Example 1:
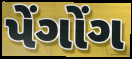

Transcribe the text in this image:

પેંગોંગ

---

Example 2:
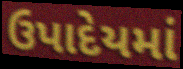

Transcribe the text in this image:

ઉપાદેયમાં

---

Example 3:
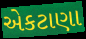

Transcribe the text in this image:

એકટાણા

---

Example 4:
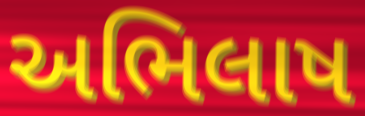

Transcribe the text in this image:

અભિલાષ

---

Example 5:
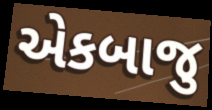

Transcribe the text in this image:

એકબાજુ